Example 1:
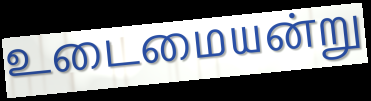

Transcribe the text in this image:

உடைமையன்று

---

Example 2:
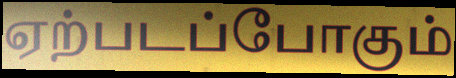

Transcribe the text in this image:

ஏற்படப்போகும்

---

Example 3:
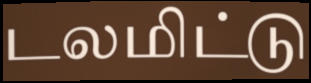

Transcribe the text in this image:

டலமிட்டு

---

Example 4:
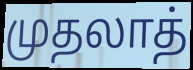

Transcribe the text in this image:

முதலாத்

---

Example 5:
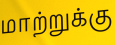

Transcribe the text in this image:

மாற்றுக்கு